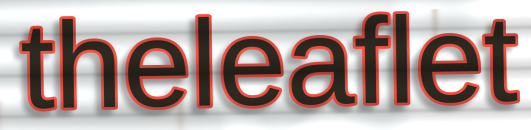
theleaflet